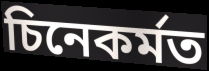
চিনেকৰ্মত